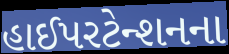
હાઈપરટેન્શનના